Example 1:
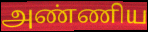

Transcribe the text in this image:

அண்ணிய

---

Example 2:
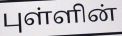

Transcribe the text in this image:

புள்ளின்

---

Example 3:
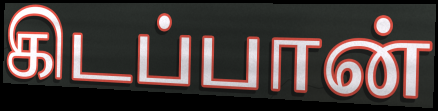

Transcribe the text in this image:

கிடப்பான்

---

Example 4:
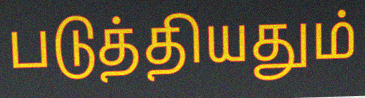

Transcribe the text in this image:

படுத்தியதும்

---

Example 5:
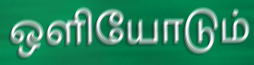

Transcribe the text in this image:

ஒளியோடும்